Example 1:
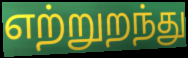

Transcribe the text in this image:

எற்றுறந்து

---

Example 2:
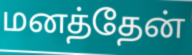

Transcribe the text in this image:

மனத்தேன்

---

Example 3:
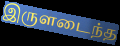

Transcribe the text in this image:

இருளடைந்த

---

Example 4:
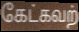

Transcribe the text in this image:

கேட்கவற்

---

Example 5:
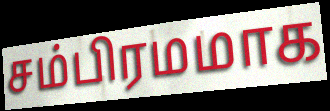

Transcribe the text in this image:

சம்பிரமமாக